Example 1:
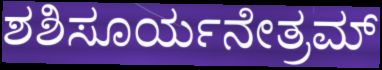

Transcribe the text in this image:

ಶಶಿಸೂರ್ಯನೇತ್ರಮ್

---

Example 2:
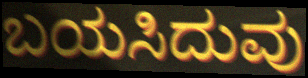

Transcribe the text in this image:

ಬಯಸಿದುವು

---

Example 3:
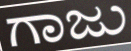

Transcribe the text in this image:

ಗಾಜು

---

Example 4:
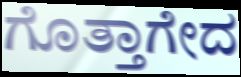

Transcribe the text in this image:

ಗೊತ್ತಾಗೇದ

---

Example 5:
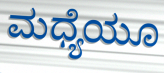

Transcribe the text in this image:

ಮಧ್ಯೆಯೂ